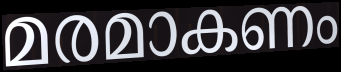
മരമാകണം